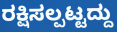
ರಕ್ಷಿಸಲ್ಪಟ್ಟದ್ದು